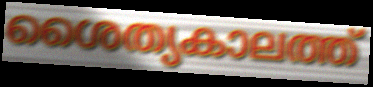
ശൈത്യകാലത്ത്